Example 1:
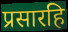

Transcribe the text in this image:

प्रसारहि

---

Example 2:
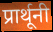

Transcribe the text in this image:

प्रार्थूनी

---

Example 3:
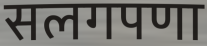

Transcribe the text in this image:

सलगपणा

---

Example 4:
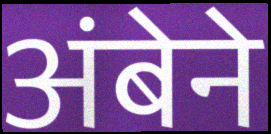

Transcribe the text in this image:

अंबेने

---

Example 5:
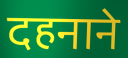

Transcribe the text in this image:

दहनाने